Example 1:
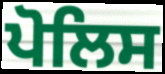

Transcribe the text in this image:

ਪੋਲਿਸ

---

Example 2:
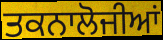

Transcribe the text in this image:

ਤਕਨਾਲੋਜੀਆਂ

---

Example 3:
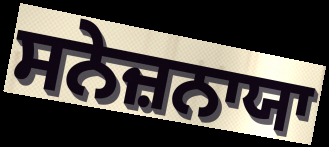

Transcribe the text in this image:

ਸਨੇਜ਼ਨਾਯਾ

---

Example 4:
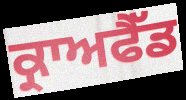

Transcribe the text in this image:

ਕ੍ਰਾਅਫੈੱਡ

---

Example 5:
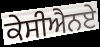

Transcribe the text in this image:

ਕੇਸੀਐਨਏ